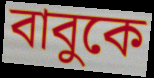
বাবুকে